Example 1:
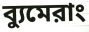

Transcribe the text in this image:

ব্যুমেরাং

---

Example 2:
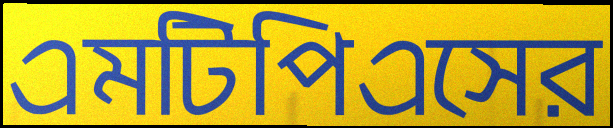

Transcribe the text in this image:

এমটিপিএসের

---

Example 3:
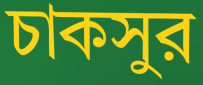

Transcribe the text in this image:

চাকসুর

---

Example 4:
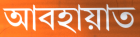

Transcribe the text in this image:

আবহায়াত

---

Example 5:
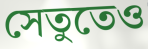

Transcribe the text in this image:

সেতুতেও